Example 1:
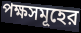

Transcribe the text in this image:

পক্ষসমূহের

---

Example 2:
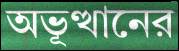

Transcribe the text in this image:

অভূত্থানের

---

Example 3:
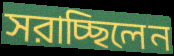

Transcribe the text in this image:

সরাচ্ছিলেন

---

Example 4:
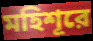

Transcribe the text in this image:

মহিশূরে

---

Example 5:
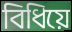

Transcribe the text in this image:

বিধিয়ে